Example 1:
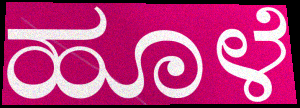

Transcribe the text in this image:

ಹೂಳೆ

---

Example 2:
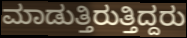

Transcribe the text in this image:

ಮಾಡುತ್ತಿರುತ್ತಿದ್ದರು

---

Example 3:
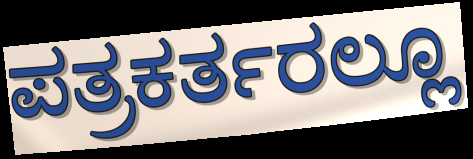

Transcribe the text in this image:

ಪತ್ರಕರ್ತರಲ್ಲೂ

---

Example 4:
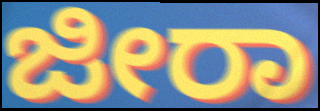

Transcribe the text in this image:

ಜೀರಾ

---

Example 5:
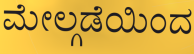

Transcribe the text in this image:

ಮೇಲ್ಗಡೆಯಿಂದ